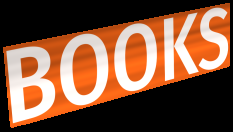
BOOKS